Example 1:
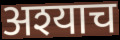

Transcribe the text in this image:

अश्याच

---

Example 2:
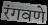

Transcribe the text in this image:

रंगवणे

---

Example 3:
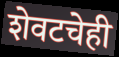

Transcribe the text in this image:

शेवटचेही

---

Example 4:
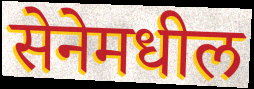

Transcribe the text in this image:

सेनेमधील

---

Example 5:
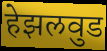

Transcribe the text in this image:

हेझलवुड